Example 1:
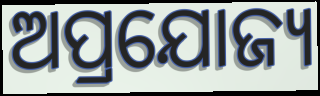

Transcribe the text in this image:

ଅପ୍ରଯୋଜ୍ୟ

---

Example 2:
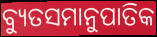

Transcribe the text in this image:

ବ୍ୟୁତସମାନୁପାତିକ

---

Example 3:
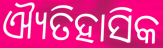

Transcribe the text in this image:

ଐ୍ୟତିହାସିକ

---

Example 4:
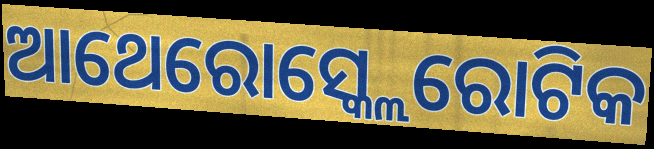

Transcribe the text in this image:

ଆଥେରୋସ୍କ୍ଲେରୋଟିକ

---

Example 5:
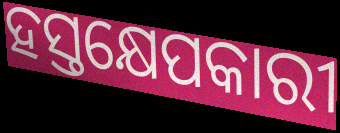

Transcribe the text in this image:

ହସ୍ତକ୍ଷେପକାରୀ